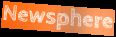
Newsphere